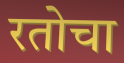
रतोचा